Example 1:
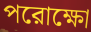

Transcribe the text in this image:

পরোক্ষো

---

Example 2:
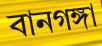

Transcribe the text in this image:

বানগঙ্গা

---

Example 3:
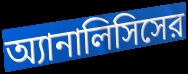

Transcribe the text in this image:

অ্যানালিসিসের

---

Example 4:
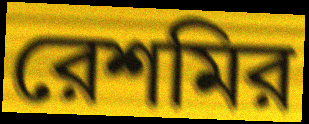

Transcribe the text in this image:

রেশমির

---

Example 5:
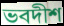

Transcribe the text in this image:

ভবদীশ